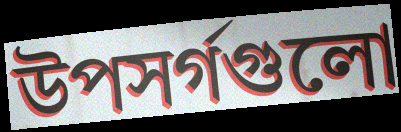
উপসর্গগুলো